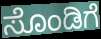
ಸೊಂಡಿಗೆ